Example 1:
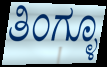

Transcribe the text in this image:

ತಿಂಗ್ಳೂ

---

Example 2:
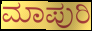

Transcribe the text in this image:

ಮಾಪುರಿ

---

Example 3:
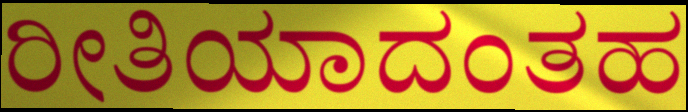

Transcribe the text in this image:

ರೀತಿಯಾದಂತಹ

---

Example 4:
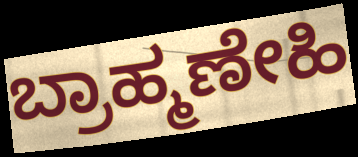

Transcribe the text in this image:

ಬ್ರಾಹ್ಮಣೇಹಿ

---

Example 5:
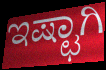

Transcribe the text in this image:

ಇಷ್ಟಾಗಿ